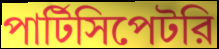
পার্টিসিপেটরি